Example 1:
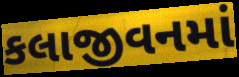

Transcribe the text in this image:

કલાજીવનમાં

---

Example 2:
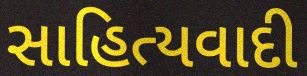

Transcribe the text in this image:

સાહિત્યવાદી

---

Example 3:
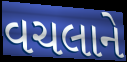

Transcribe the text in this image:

વચલાને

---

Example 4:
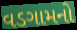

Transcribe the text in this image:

વડગામનો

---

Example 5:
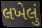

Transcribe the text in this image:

લખેલું